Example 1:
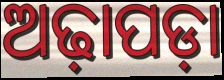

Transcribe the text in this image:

ଅଢ଼ାପଡ଼ା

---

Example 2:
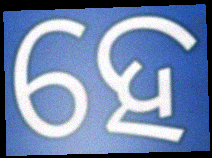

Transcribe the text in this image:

ହେ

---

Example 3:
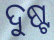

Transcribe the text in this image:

ଦୁଷ୍ଟ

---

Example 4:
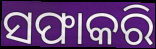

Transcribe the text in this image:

ସଫାକରି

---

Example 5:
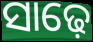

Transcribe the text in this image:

ସାଢ଼େ